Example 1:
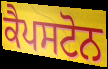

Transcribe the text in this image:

ਕੈਪਸਟੋਨ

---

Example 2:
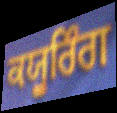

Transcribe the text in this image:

ਕਯੂਰਿੰਗ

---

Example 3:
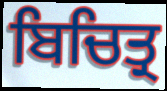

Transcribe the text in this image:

ਬਿਚਿਤ੍ਰ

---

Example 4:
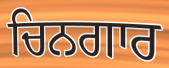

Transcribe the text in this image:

ਚਿਨਗਾਰ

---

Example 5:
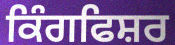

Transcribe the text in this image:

ਕਿੰਗਫਿਸ਼ਰ